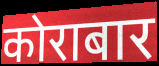
कोराबार